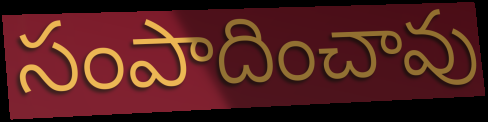
సంపాదించావు